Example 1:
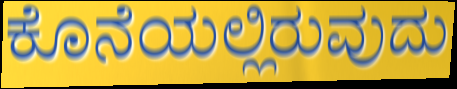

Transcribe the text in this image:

ಕೊನೆಯಲ್ಲಿರುವುದು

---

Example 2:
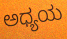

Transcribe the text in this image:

ಅಧ್ಯಯ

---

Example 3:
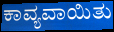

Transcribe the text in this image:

ಕಾವ್ಯವಾಯಿತು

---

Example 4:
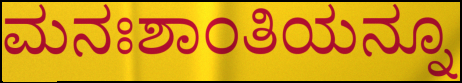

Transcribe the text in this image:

ಮನಃಶಾಂತಿಯನ್ನೂ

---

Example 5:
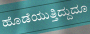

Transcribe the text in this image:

ಹೊಡೆಯುತ್ತಿದ್ದುದೂ